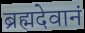
ब्रह्मदेवानं